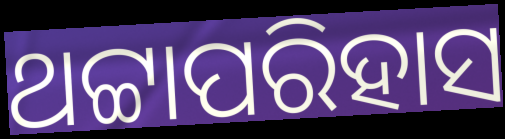
ଥଟ୍ଟାପରିହାସ